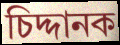
চিদ্দানক